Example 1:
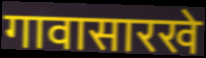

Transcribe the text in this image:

गावासारखे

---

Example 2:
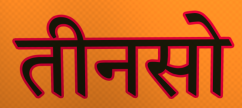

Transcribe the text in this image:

तीनसो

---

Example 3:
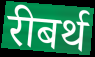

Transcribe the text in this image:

रीबर्थ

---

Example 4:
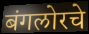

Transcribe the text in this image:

बंगलोरचे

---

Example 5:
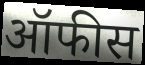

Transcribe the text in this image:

ऑफीस